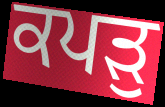
ਕਪੜੁ